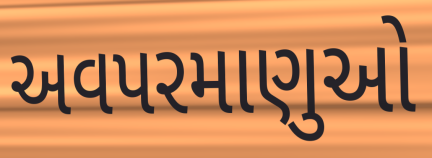
અવપરમાણુઓ